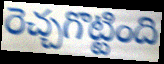
రెచ్చగొట్టింది